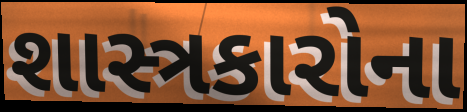
શાસ્ત્રકારોના